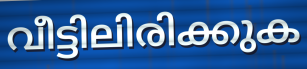
വീട്ടിലിരിക്കുക